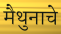
मैथुनाचे